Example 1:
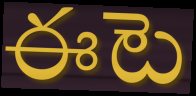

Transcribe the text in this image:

ఈటె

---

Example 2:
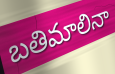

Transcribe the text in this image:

బతిమాలినా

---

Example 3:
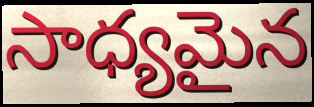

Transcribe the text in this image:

సాధ్యమైన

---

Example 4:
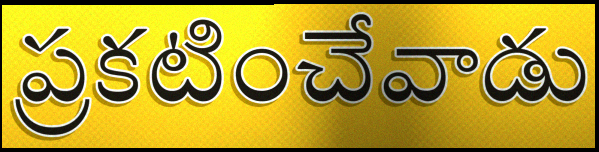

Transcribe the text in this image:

ప్రకటించేవాడు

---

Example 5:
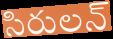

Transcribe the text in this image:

సిరులన్